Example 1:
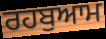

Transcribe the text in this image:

ਰਹਬੁਆਮ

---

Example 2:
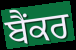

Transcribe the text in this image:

ਬੈਂਕਰ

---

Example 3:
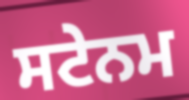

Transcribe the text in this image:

ਸਟੇਨਮ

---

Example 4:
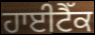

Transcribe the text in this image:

ਹਾਈਟੈੱਕ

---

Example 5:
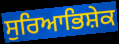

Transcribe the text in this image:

ਸੁਰਿਆਭਿਸ਼ੇਕ